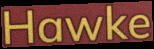
Hawke